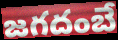
జగదంబే